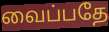
வைப்பதே